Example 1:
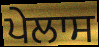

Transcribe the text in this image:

ਪੇਲਾਸ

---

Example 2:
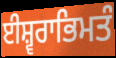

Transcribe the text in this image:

ਈਸ਼੍ਵਰਾਭਿਮਤੰ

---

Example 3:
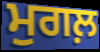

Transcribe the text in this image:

ਮੁਗਲ਼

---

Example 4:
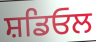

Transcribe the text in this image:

ਸ਼ਡਿਓਲ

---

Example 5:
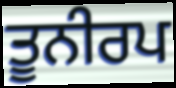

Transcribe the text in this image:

ਤੂਨੀਰਪ